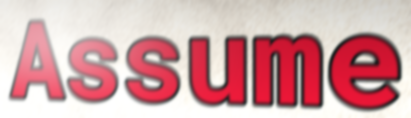
Assume